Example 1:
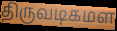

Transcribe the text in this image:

திருவடிகமள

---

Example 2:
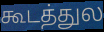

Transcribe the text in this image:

கூடத்துல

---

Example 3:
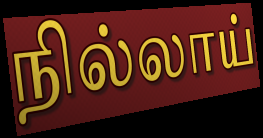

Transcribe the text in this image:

நில்லாய்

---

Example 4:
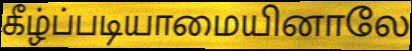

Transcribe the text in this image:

கீழ்ப்படியாமையினாலே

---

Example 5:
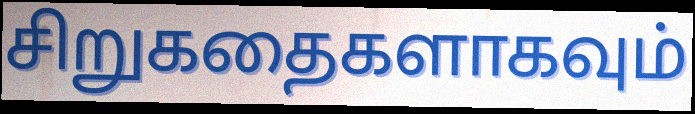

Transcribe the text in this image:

சிறுகதைகளாகவும்